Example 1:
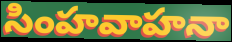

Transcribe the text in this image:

సింహవాహనా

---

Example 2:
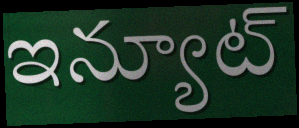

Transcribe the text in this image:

ఇన్యూట్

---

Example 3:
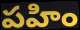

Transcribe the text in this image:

పహిం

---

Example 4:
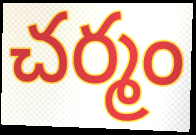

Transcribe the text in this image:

చర్మం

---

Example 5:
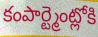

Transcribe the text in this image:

కంపార్ట్మెంట్లోకి